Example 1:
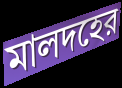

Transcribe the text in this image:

মালদহের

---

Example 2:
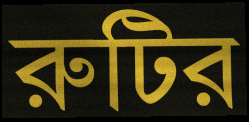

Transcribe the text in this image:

রুটির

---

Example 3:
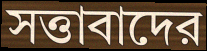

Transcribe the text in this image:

সত্তাবাদের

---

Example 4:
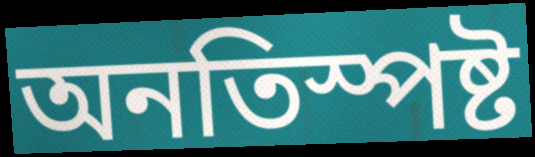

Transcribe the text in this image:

অনতিস্পষ্ট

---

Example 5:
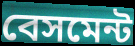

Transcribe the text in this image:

বেসমেন্ট